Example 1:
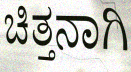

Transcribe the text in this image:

ಚಿತ್ತನಾಗಿ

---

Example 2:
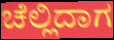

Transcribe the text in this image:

ಚೆಲ್ಲಿದಾಗ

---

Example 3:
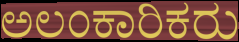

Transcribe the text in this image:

ಅಲಂಕಾರಿಕರು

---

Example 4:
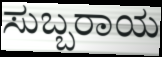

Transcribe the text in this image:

ಸುಬ್ಬರಾಯ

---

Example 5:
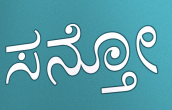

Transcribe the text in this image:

ಸನ್ತೋ